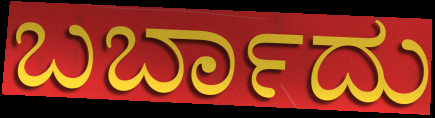
ಬರ್ಬಾದು